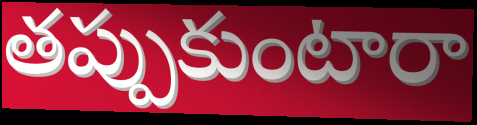
తప్పుకుంటారా